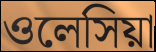
ওলেসিয়া